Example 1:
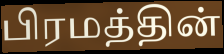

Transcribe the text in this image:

பிரமத்தின்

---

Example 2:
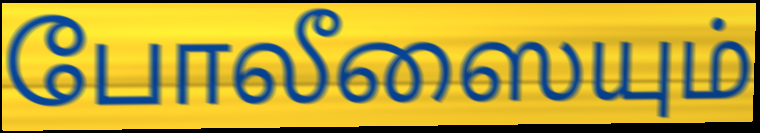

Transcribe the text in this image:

போலீஸையும்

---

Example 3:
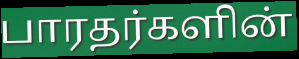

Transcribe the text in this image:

பாரதர்களின்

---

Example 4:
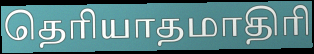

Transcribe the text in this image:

தெரியாதமாதிரி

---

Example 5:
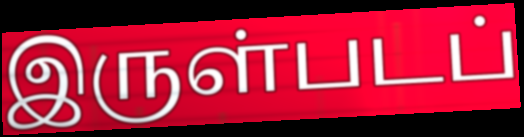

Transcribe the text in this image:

இருள்படப்